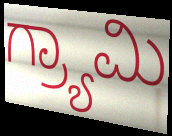
ಗ್ರ್ಯಾಮಿ